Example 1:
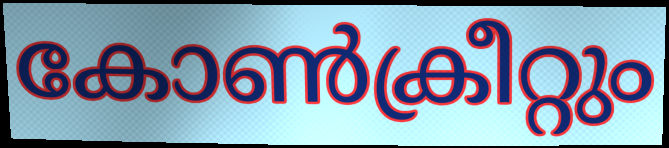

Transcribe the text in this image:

കോൺക്രീറ്റും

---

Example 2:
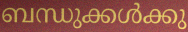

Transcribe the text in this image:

ബന്ധുക്കൾക്കു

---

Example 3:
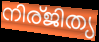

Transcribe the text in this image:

നിര്ജിത്യ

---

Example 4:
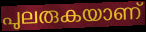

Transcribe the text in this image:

പുലരുകയാണ്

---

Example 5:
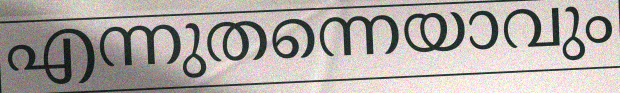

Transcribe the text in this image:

എന്നുതന്നെയാവും